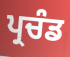
ਪ੍ਰਚੰਡ